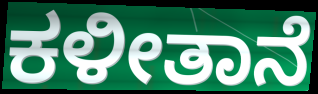
ಕಳೀತಾನೆ